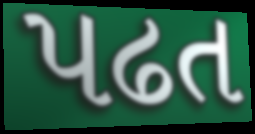
પઢત